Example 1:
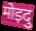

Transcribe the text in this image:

मोइदु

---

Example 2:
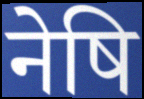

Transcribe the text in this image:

नेषि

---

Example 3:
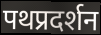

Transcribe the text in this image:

पथप्रदर्शन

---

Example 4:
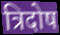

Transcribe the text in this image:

त्रिदोष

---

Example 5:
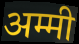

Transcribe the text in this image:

अम्मी